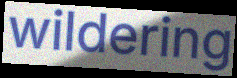
wildering